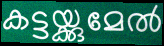
കട്ടയ്ക്കുമേൽ